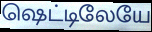
ஷெட்டிலேயே